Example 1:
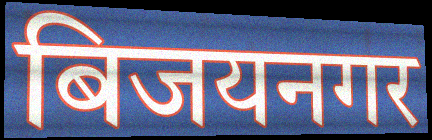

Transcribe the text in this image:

बिजयनगर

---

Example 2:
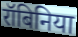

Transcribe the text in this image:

रॉबिनिया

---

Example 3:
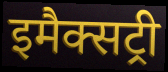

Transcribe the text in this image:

इमैक्सट्री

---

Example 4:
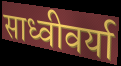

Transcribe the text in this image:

साध्वीवर्या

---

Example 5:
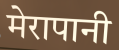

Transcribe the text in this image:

मेरापानी